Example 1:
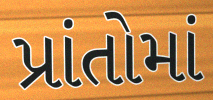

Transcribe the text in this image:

પ્રાંતોમાં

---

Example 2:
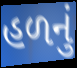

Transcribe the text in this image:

હળનું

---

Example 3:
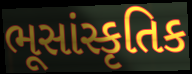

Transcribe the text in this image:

ભૂસાંસ્કૃતિક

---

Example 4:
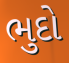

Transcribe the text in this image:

ભુદો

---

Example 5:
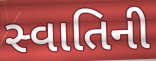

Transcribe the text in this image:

સ્વાતિની